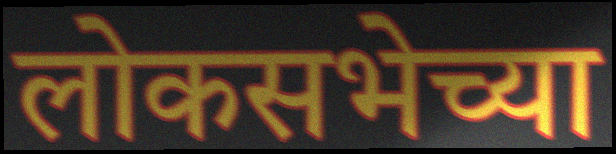
लोकसभेच्या